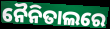
ନୈନିତାଲରେ